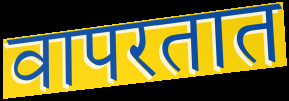
वापरतात